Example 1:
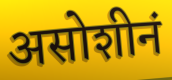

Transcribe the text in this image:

असोशीनं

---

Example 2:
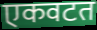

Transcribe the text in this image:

एकवटत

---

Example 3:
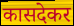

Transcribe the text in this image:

कासदेकर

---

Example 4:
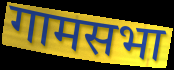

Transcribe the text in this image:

गामसभा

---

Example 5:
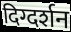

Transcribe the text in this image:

दिग्दर्शन